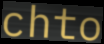
chto